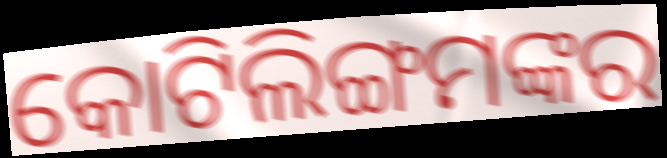
କୋଟିଲିଙ୍ଗମଙ୍କର